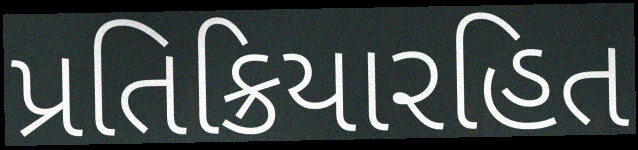
પ્રતિક્રિયારહિત